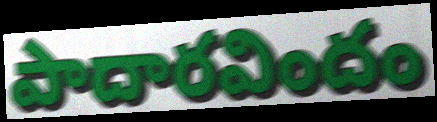
పాదారవిందం